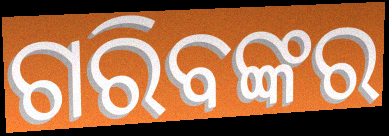
ଗରିବଙ୍କର